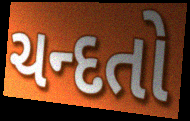
ચન્દતો